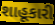
શાહૂકારી